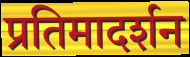
प्रतिमादर्शन